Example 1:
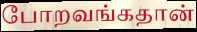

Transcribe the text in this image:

போறவங்கதான்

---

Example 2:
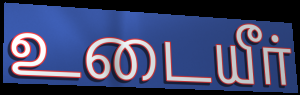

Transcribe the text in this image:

உடையீர்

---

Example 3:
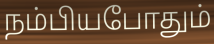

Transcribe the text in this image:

நம்பியபோதும்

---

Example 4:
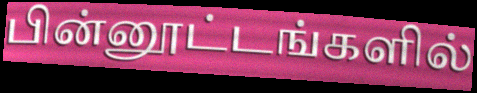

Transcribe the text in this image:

பின்னூட்டங்களில்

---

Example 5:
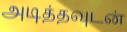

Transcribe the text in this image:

அடித்தவுடன்